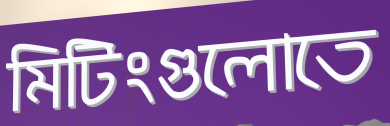
মিটিংগুলোতে